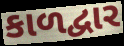
કાળદ્વાર